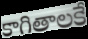
కాగితాలకే